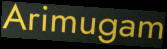
Arimugam